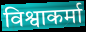
विश्वाकर्मा